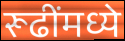
रूढींमध्ये